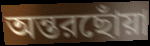
অন্তরছোঁয়া